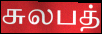
சுலபத்